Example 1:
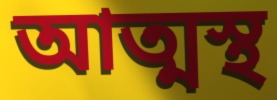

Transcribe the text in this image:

আত্মস্থ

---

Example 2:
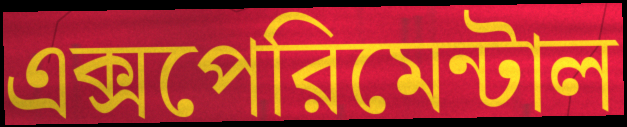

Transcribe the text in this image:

এক্সপেরিমেন্টাল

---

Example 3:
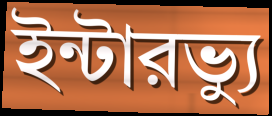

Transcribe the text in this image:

ইন্টারভ্যু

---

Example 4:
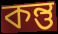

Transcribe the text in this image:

কন্তু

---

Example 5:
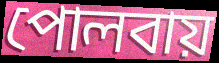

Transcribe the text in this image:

পোলবায়